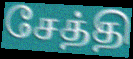
சேத்தி